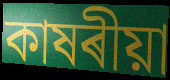
কাষৰীয়া